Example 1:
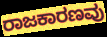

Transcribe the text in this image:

ರಾಜಕಾರಣವು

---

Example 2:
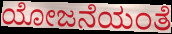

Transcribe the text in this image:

ಯೋಜನೆಯಂತೆ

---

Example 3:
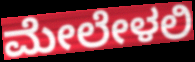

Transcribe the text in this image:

ಮೇಲೇಳಲಿ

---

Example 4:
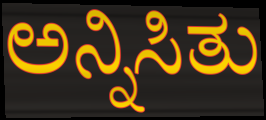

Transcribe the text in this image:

ಅನ್ನಿಸಿತು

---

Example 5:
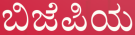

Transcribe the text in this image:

ಬಿಜೆಪಿಯ